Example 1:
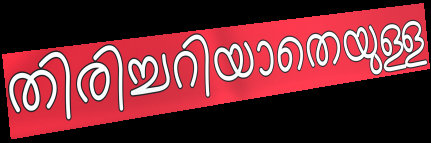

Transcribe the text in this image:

തിരിച്ചറിയാതെയുള്ള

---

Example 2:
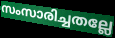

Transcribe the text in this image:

സംസാരിച്ചതല്ലേ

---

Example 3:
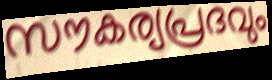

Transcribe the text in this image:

സൗകര്യപ്രദവും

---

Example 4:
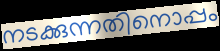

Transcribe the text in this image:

നടക്കുന്നതിനൊപ്പം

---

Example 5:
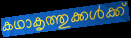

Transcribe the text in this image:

കഥാകൃത്തുക്കൾക്ക്